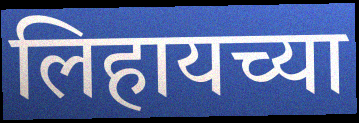
लिहायच्या